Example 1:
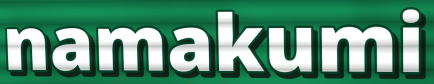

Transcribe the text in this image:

namakumi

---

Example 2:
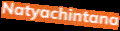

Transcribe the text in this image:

Natyachintana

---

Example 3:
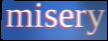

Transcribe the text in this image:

misery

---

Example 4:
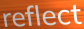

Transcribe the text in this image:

reflect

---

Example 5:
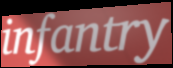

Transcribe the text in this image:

infantry